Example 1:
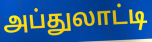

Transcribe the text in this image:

அப்துலாட்டி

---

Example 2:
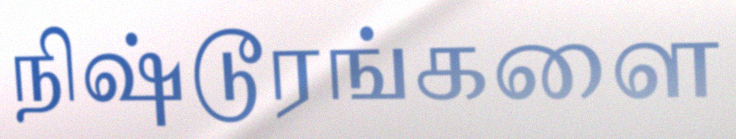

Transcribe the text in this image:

நிஷ்டூரங்களை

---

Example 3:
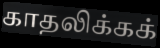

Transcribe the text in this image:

காதலிக்கக்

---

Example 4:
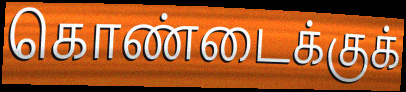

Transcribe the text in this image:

கொண்டைக்குக்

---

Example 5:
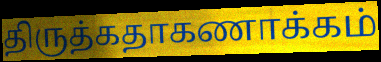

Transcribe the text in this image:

திருத்கதாகணாக்கம்